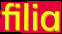
filia